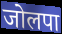
जोलपा